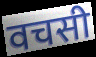
वचसी